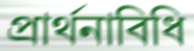
প্রার্থনাবিধি